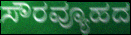
ಸೌರವ್ಯೂಹದ